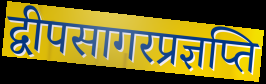
द्वीपसागरप्रज्ञप्ति